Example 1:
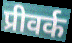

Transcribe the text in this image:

प्रीवर्क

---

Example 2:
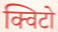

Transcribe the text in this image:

क्विटो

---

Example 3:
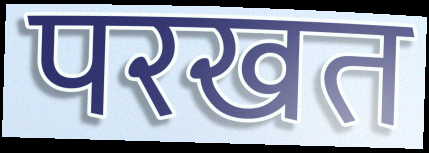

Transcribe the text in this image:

परखत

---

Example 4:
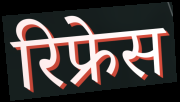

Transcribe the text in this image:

रिफ्रेस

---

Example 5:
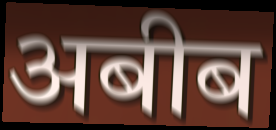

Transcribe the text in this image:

अबीब